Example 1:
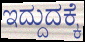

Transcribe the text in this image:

ಇದ್ದುದಕ್ಕೆ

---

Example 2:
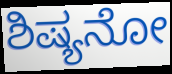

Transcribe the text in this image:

ಶಿಷ್ಯನೋ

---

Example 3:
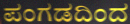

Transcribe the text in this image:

ಪಂಗಡದಿಂದ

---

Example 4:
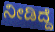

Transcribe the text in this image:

ನೀಡಿದ್ದೆ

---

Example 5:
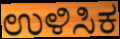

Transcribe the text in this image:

ಉಳಿಸಿಕ